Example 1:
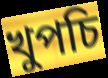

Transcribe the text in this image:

খুপচি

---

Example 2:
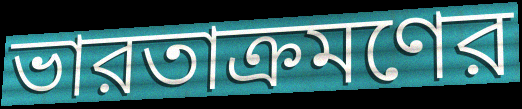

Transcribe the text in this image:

ভারতাক্রমণের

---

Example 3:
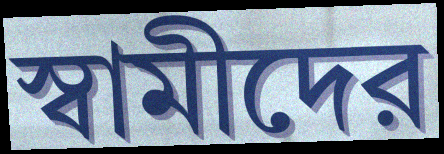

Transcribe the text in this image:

স্বামীদের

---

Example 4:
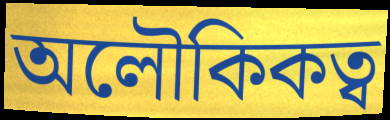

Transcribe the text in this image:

অলৌকিকত্ব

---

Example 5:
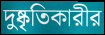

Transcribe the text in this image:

দুষ্কৃতিকারীর